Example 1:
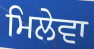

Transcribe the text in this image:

ਮਿਲੇਵਾ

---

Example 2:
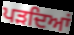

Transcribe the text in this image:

ਪੜਦਿਆਂ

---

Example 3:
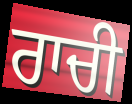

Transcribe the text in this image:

ਰਾਚੀ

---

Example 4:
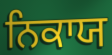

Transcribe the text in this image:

ਨਿਕਾਯ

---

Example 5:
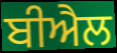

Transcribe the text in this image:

ਬੀਐਲ